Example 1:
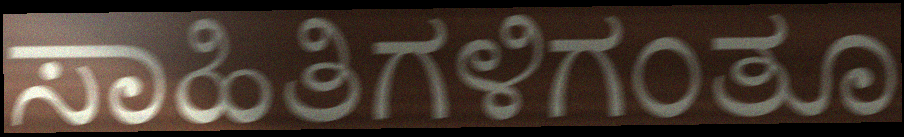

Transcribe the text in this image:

ಸಾಹಿತಿಗಳಿಗಂತೂ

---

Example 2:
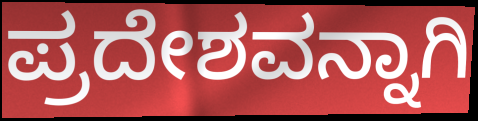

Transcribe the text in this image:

ಪ್ರದೇಶವನ್ನಾಗಿ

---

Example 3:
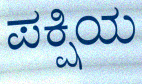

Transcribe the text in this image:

ಪಕ್ಷಿಯ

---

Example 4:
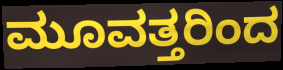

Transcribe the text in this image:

ಮೂವತ್ತರಿಂದ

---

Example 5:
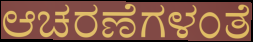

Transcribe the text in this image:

ಆಚರಣೆಗಳಂತೆ